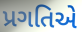
પ્રગતિએ